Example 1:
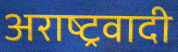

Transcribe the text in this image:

अराष्ट्रवादी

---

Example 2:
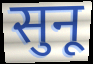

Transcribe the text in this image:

सुनू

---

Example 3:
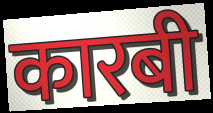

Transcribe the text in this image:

कारबी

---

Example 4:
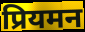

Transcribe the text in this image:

प्रियमन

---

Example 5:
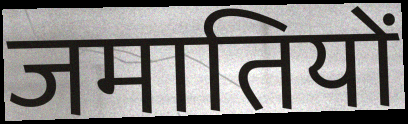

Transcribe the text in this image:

जमातियों